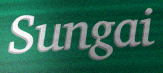
Sungai